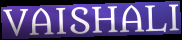
VAISHALI